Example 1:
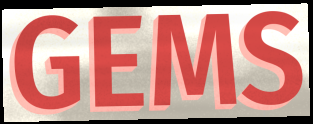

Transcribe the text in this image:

GEMS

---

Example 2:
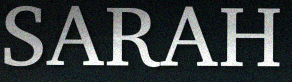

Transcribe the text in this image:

SARAH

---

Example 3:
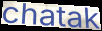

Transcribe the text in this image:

chatak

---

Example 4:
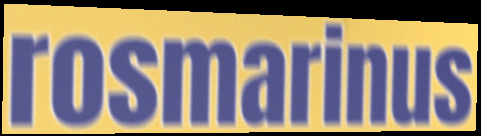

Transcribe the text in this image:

rosmarinus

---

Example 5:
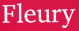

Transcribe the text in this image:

Fleury